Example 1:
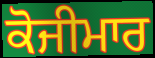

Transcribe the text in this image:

ਕੋਜੀਮਾਰ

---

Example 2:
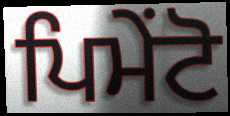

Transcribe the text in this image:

ਪਿਮੇਂਟੋ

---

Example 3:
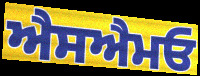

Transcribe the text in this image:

ਐਸਐਮਓ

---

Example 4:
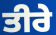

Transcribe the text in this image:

ਤੀਰੇ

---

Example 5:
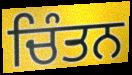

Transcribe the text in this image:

ਚਿੰਤਨ